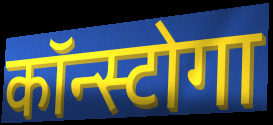
कॉन्स्टोगा